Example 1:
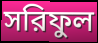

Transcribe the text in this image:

সরিফুল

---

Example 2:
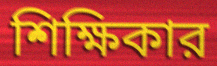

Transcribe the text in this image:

শিক্ষিকার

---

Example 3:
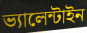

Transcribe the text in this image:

ভ্যালেন্টাইন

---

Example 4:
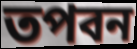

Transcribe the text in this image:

তপবন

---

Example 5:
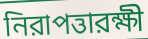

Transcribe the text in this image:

নিরাপত্তারক্ষী